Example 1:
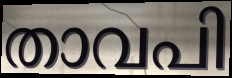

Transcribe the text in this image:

താവപി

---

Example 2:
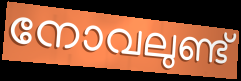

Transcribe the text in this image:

നോവലുണ്ട്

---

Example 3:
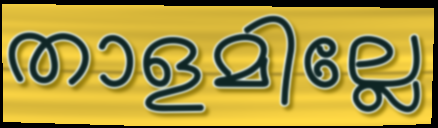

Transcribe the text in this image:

താളമില്ലേ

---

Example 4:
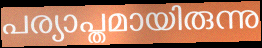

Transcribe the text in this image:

പര്യാപ്തമായിരുന്നു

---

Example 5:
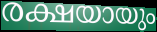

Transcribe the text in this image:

രക്ഷയായും